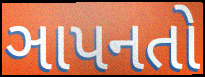
ઞાપનતો